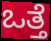
ಒತ್ತೆ